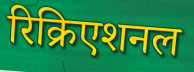
रिक्रिएशनल